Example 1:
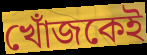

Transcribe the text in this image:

খোঁজকেই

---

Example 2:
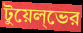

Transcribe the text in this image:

টুয়েল্ভের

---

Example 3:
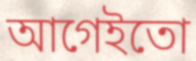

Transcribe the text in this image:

আগেইতো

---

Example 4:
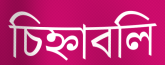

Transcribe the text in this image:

চিহ্নাবলি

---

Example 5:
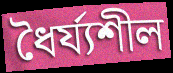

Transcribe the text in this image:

ধৈর্য্যশীল